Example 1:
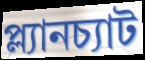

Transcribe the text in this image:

প্ল্যানচ্যাট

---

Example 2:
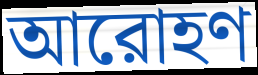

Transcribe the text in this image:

আরোহণ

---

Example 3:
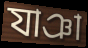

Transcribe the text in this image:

যাঞা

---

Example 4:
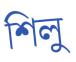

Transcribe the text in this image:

শিলু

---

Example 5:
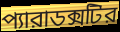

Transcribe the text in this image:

প্যারাডক্সটির